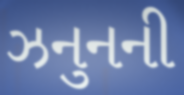
ઝનુનની